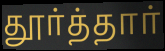
தூர்த்தார்